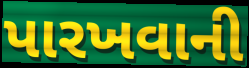
પારખવાની